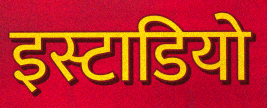
इस्टाडियो